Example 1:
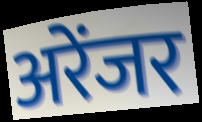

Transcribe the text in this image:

अरेंजर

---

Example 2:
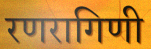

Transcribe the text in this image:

रणरागिणी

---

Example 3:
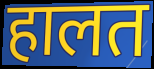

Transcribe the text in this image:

हालत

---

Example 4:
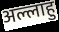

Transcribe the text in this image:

अल्लाहु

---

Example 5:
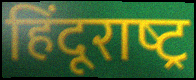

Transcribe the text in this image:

हिंदूराष्ट्र